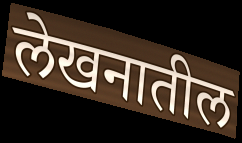
लेखनातील